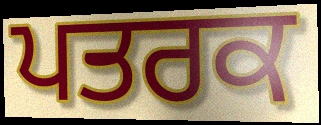
ਪਤਰਕ